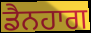
ਡੈਨਹਾਗ